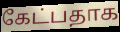
கேட்பதாக